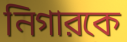
নিগারকে